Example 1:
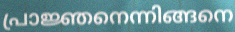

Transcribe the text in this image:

പ്രാജ്ഞനെന്നിങ്ങനെ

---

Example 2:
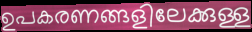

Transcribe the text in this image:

ഉപകരണങ്ങളിലേക്കുള്ള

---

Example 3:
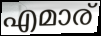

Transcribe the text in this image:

എമാര്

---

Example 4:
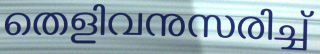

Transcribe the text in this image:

തെളിവനുസരിച്ച്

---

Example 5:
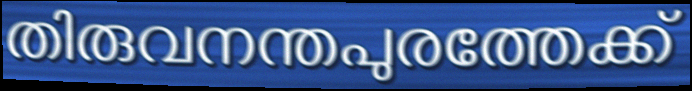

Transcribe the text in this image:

തിരുവനന്തപുരത്തേക്ക്